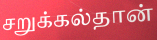
சறுக்கல்தான்